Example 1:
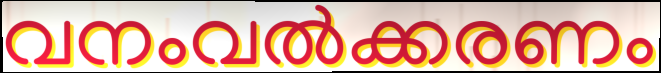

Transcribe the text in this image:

വനംവൽക്കരണം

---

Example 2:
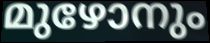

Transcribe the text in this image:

മുഴോനും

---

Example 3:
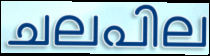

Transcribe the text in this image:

ചലപില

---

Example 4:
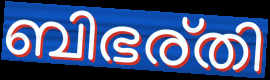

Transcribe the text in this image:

ബിഭര്തി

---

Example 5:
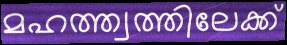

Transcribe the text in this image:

മഹത്ത്വത്തിലേക്ക്